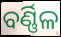
ବର୍ଣ୍ଣିଳ